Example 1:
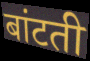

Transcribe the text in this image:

बांटती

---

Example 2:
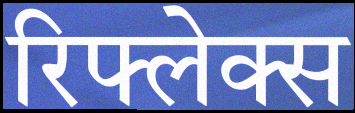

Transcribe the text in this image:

रिफ्लेक्स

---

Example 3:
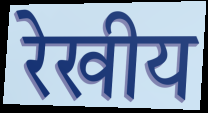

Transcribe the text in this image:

रेखीय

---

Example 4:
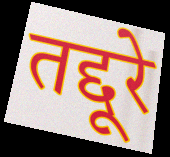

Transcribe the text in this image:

तद्दूरे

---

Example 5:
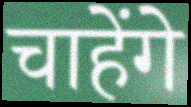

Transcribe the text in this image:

चाहेंगे